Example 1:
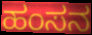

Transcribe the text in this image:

ಹಂಸನ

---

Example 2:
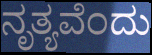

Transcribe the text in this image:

ನೃತ್ಯವೆಂದು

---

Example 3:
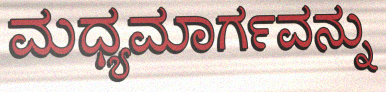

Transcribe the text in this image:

ಮಧ್ಯಮಾರ್ಗವನ್ನು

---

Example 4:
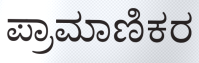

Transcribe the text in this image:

ಪ್ರಾಮಾಣಿಕರ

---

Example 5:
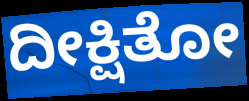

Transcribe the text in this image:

ದೀಕ್ಷಿತೋ